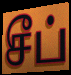
சீப்